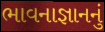
ભાવનાજ્ઞાનનું